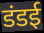
डंडई